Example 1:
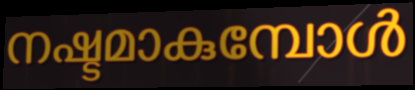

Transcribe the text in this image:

നഷ്ടമാകുമ്പോൾ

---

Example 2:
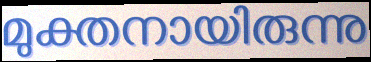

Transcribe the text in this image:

മുക്തനായിരുന്നു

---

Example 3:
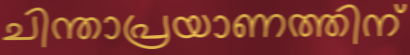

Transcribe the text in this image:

ചിന്താപ്രയാണത്തിന്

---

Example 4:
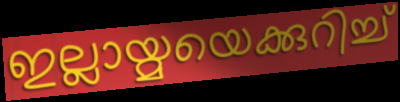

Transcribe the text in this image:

ഇല്ലായ്മയെക്കുറിച്ച്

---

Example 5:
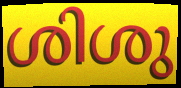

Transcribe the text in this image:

ശിശു